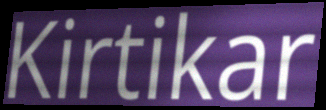
Kirtikar